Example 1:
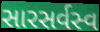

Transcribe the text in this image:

સારસર્વસ્વ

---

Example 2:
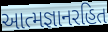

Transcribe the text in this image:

આત્મજ્ઞાનરહિત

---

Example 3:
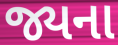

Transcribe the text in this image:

જ્યના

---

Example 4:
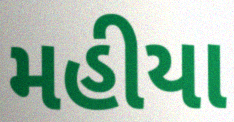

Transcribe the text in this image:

મહીયા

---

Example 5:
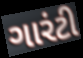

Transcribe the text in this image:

ગારંટી